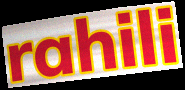
rahili